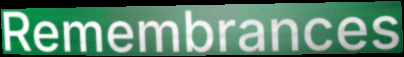
Remembrances